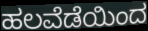
ಹಲವೆಡೆಯಿಂದ